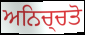
ਅਨਿਚ੍ਚਤੋ